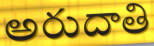
అరుదాతి